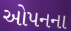
ઓપનના